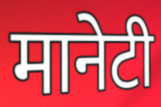
मानेटी